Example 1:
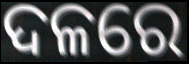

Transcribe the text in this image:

ଦଳରେ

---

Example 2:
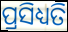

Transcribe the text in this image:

ପ୍ରସିଧ୍ୟତି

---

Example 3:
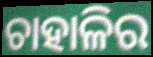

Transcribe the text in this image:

ଚାହାଳିର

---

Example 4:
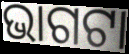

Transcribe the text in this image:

ଭାଗଟା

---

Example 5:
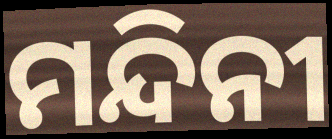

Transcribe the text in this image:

ମନ୍ଦିନୀ